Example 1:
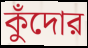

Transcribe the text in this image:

কুঁদোর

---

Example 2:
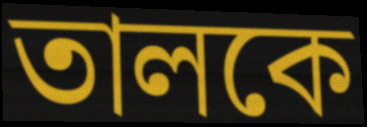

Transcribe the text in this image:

তালকে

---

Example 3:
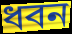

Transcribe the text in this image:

ধবন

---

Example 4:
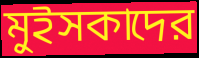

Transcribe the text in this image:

মুইসকাদের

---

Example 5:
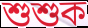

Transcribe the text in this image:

শুশুক